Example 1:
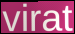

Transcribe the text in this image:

virat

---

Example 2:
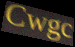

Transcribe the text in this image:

Cwgc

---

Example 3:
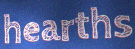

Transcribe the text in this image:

hearths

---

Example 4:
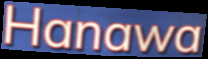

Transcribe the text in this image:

Hanawa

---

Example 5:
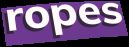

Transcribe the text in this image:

ropes